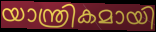
യാന്ത്രികമായി